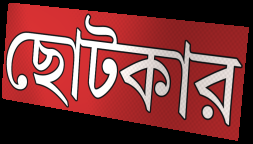
ছোটকার